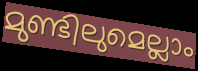
മുണ്ടിലുമെല്ലാം